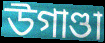
উগাণ্ডা